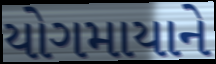
યોગમાયાને